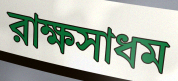
রাক্ষসাধম